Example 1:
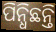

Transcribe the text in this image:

ପିନ୍ଧିଛନ୍ତି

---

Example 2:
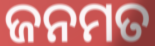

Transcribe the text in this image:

ଜନମତ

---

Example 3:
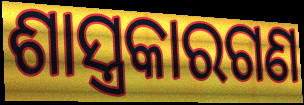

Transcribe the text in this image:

ଶାସ୍ତ୍ରକାରଗଣ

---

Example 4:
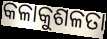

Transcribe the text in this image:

କଳାକୁଶଳତା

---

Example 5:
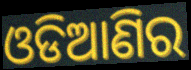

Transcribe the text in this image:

ଓଡିଆଣିର